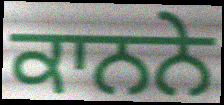
ਕਾਨਨੇ